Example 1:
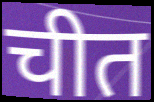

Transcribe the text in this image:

चीत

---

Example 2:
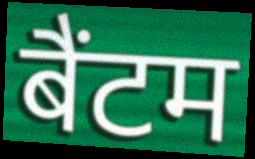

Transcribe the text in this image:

बैंटम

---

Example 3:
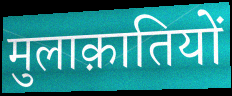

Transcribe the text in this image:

मुलाक़ातियों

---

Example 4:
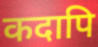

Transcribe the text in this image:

कदापि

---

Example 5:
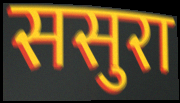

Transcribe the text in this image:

ससुरा